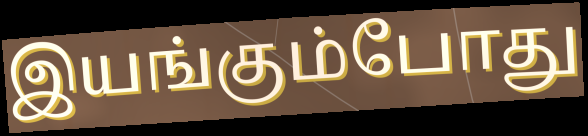
இயங்கும்போது